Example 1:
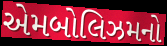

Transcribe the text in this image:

એમબોલિઝમનો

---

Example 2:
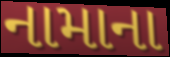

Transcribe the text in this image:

નામાના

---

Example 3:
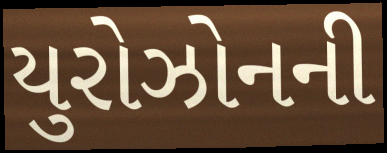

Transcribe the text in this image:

યુરોઝોનની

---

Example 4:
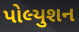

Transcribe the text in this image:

પોલ્યુશન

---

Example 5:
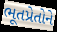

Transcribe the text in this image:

ભૂતપ્રેતોને